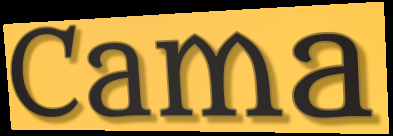
Cama